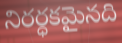
నిరర్ధకమైనది